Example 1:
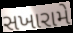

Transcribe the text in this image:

સખારામે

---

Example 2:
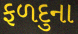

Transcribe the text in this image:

ફળદુના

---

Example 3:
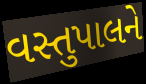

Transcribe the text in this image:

વસ્તુપાલને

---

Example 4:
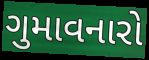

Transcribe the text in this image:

ગુમાવનારો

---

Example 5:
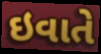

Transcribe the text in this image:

ઇવાતે